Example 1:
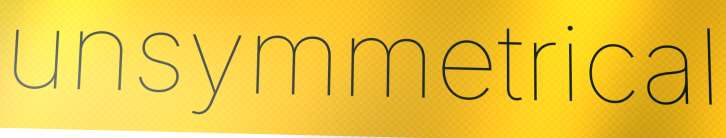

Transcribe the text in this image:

unsymmetrical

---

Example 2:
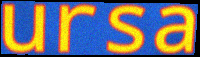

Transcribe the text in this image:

ursa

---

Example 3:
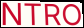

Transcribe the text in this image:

NTRO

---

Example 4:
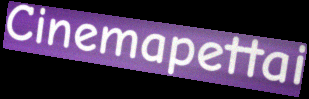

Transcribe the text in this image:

Cinemapettai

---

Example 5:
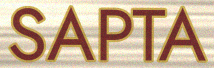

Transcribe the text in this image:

SAPTA